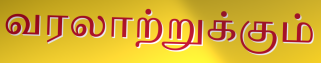
வரலாற்றுக்கும்